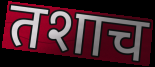
तशाच